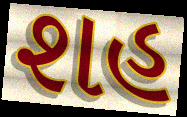
શહ